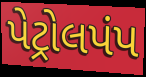
પેટ્રોલપંપ